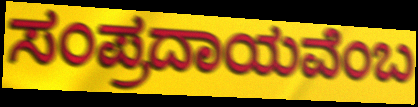
ಸಂಪ್ರದಾಯವೆಂಬ